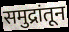
समुद्रांतून